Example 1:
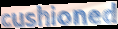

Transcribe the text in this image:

cushioned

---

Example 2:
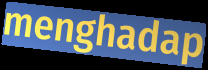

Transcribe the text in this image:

menghadap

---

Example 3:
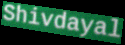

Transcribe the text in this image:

Shivdayal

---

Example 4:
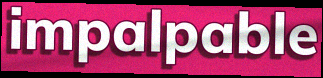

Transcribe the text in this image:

impalpable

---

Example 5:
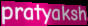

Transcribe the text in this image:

pratyaksh